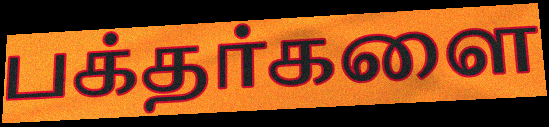
பக்தர்களை